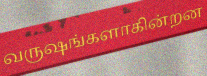
வருஷங்களாகின்றன